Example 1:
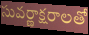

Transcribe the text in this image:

సువర్ణాక్షరాలతో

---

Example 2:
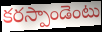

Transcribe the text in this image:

కరస్పాండెంటు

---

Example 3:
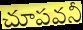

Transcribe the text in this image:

చూపవనీ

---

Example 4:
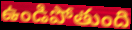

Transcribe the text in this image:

ఉండిపోతుంది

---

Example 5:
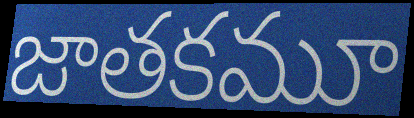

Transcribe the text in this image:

జాతకమూ